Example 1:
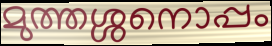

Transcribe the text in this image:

മുത്തശ്ശനൊപ്പം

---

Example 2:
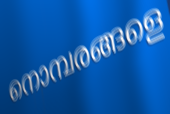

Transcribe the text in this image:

നൊമ്പരങ്ങളെ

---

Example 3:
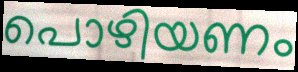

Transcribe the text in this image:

പൊഴിയണം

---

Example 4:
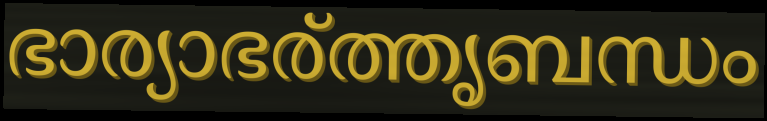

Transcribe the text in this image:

ഭാര്യാഭര്ത്തൃബന്ധം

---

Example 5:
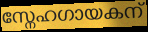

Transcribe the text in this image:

സ്നേഹഗായകന്